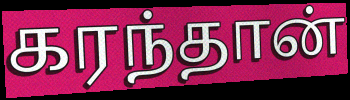
கரந்தான்